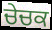
ਚੇਚਕ